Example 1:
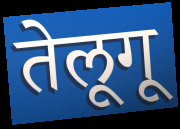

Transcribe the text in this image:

तेलूगू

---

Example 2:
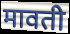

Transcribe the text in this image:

मावती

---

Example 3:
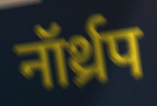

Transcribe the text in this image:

नॉर्थ्रप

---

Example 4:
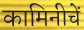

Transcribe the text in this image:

कामिनीचें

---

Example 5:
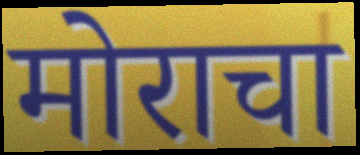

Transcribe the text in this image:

मोराचा